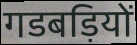
गडबड़ियों